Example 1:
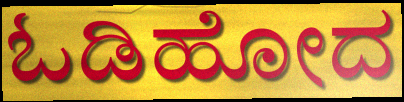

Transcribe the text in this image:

ಓಡಿಹೋದ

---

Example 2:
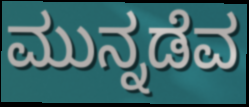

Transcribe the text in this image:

ಮುನ್ನಡೆವ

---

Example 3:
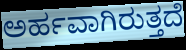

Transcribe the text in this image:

ಅರ್ಹವಾಗಿರುತ್ತದೆ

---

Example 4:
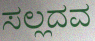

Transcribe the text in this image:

ಸಲ್ಲದವ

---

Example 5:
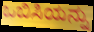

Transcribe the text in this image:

ಒಬಿಸಿಯನ್ನು